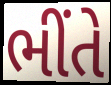
ભીંતે